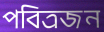
পবিত্রজন